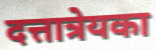
दत्तात्रेयका